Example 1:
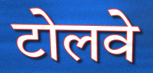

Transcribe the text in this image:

टोलवे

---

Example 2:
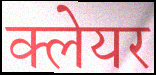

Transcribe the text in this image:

क्‍लेयर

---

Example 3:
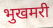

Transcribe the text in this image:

भुखमरी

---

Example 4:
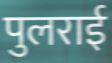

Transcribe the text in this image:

पुलराई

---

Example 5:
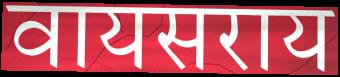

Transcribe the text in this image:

वायसराय